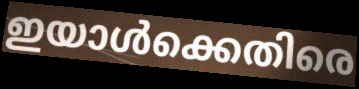
ഇയാൾക്കെതിരെ